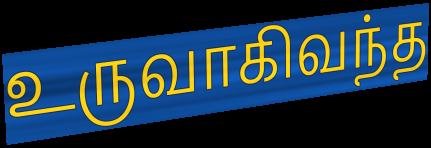
உருவாகிவந்த